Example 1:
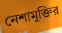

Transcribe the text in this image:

নেশামুক্তির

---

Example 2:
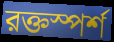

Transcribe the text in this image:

রক্তস্পর্শ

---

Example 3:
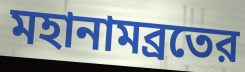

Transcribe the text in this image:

মহানামব্রতের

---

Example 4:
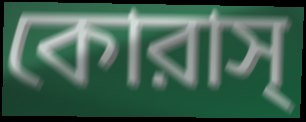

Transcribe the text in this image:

কোরাস্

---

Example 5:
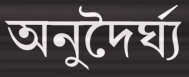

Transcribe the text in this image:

অনুদৈর্ঘ্য